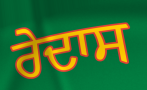
ਰੇਦਾਸ